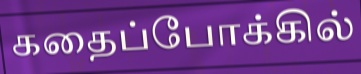
கதைப்போக்கில்